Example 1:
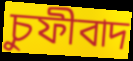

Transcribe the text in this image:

চুফীবাদ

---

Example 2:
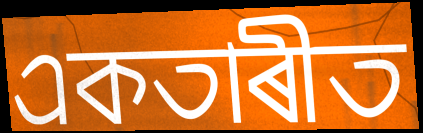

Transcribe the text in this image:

একতাৰীত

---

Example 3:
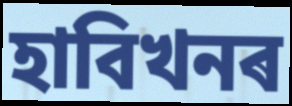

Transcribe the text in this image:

হাবিখনৰ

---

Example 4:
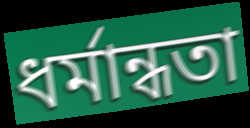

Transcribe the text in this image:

ধৰ্মান্ধতা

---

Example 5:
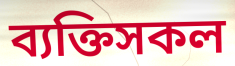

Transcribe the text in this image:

ব্যক্তিসকল